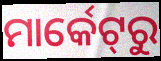
ମାର୍କେଟ୍‌ରୁ